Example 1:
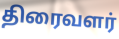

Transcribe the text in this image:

திரைவளர்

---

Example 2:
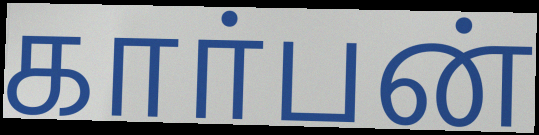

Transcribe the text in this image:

கார்பன்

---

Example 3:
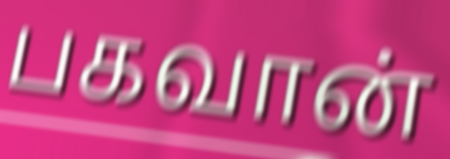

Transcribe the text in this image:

பகவான்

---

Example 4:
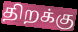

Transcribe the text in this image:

திறக்கு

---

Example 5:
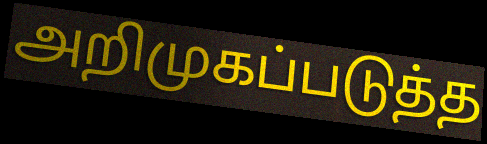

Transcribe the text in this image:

அறிமுகப்படுத்த